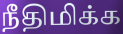
நீதிமிக்க